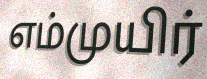
எம்முயிர்